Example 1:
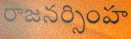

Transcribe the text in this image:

రాజనర్సింహ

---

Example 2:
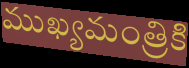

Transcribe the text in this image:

ముఖ్యమంత్రికి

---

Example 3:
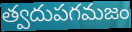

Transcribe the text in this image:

త్వదుపగమజం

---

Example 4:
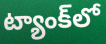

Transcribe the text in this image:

ట్యాంక్‌లో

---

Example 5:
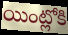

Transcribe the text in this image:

యింట్లోకి